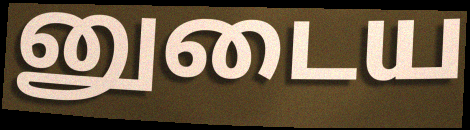
னுடைய